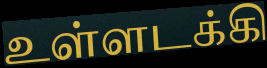
உள்ளடக்கி